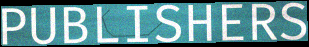
PUBLISHERS